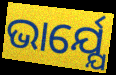
ଭାର୍ଯ୍ଯେ